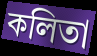
কলিতা